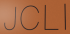
JCLI